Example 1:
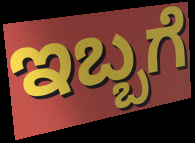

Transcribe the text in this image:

ಇಬ್ಬಗೆ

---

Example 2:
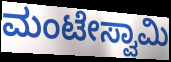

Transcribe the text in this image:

ಮಂಟೇಸ್ವಾಮಿ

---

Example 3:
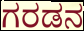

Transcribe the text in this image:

ಗರಡನ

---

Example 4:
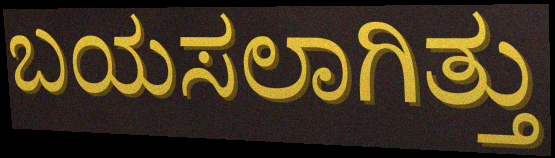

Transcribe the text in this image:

ಬಯಸಲಾಗಿತ್ತು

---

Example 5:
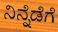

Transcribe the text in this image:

ನಿನ್ನೆಡೆಗೆ